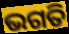
ଭଗତି